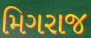
મિગરાજ